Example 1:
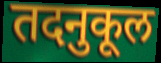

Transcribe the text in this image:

तदनुकूल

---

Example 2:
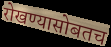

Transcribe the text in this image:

रोखण्यासोबतच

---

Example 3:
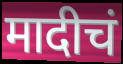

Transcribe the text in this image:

मादीचं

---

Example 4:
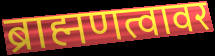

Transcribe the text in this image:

ब्राह्मणत्वावर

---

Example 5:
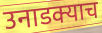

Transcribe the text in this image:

उनाडक्याच